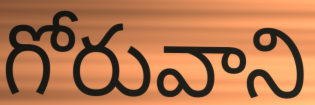
గోరువాని